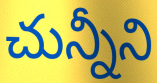
చున్నీని